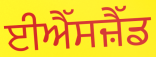
ਈਐੱਸਜ਼ੈੱਡ